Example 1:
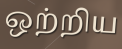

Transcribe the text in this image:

ஒற்றிய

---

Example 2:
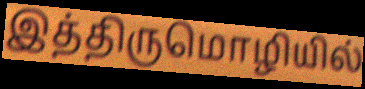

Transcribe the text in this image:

இத்திருமொழியில்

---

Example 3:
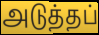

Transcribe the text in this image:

அடுத்தப்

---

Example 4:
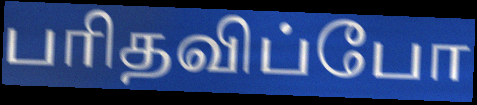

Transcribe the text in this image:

பரிதவிப்போ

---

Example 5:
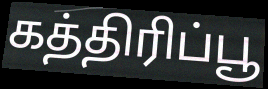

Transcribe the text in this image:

கத்திரிப்பூ